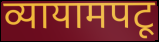
व्यायामपटू